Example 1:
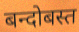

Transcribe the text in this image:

बन्दोबस्त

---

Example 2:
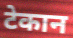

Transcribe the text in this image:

टेकान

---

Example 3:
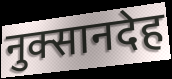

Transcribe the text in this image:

नुक्सानदेह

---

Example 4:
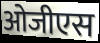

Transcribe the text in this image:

ओजीएस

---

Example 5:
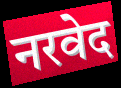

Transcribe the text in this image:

नरवेद